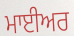
ਮਾਈਅਰ